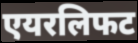
एयरलिफट